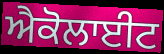
ਐਕੋਲਾਈਟ